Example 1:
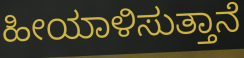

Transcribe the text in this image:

ಹೀಯಾಳಿಸುತ್ತಾನೆ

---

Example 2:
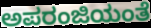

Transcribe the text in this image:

ಅಪರಂಜಿಯಂತೆ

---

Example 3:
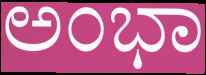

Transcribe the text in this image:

ಅಂಭಾ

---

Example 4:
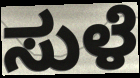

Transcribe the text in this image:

ಸುಳೆ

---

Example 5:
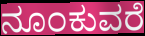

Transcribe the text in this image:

ನೂಂಕುವರೆ